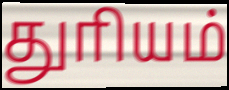
துரியம்